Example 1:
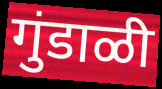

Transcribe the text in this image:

गुंडाळी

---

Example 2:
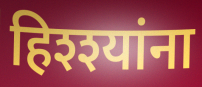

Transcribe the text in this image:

हिश्श्यांना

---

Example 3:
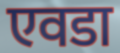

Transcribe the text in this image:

एवडा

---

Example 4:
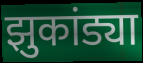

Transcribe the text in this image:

झुकांड्या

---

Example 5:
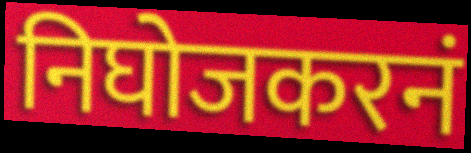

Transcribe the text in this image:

निघोजकरनं